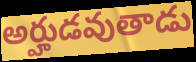
అర్హుడవుతాడు